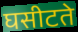
घसीटते